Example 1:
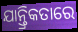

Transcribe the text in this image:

ଯାନ୍ତ୍ରିକତାରେ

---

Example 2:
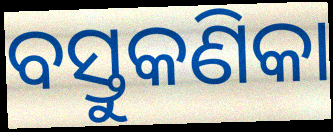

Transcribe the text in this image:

ବସ୍ତୁକଣିକା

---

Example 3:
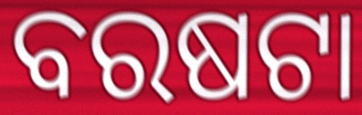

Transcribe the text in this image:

ବରଷଟା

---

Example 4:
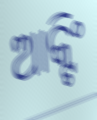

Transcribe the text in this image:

ଆକ୍ଟିଂ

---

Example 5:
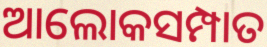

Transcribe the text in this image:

ଆଲୋକସମ୍ପାତ